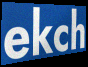
ekch